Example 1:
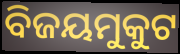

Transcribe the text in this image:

ବିଜୟମୁକୁଟ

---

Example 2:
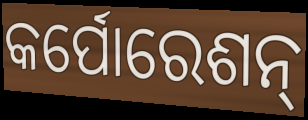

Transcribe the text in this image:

କର୍ପୋରେଶନ୍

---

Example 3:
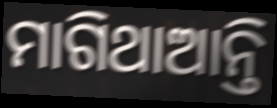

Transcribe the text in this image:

ମାଗିଥାଆନ୍ତି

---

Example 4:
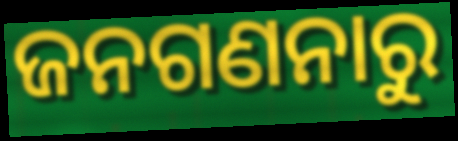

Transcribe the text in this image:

ଜନଗଣନାରୁ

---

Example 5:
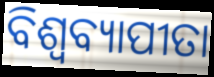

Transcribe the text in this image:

ବିଶ୍ୱବ୍ୟାପୀତା